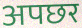
अपछर